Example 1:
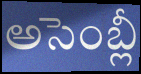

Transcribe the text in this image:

అసెంబ్లీ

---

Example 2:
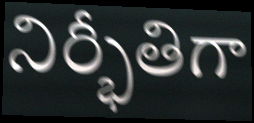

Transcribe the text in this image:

నిర్భీతిగా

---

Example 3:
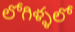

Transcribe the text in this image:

లోగిళ్ళలో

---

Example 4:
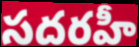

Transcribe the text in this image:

సదరహీ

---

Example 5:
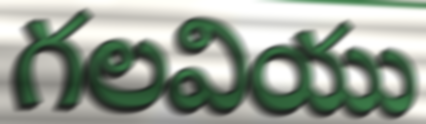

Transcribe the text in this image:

గలవియు